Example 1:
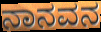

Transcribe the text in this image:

ನಾನವನ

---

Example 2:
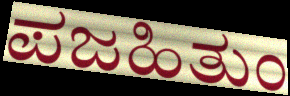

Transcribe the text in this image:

ಪಜಹಿತುಂ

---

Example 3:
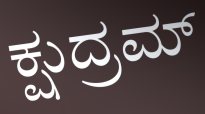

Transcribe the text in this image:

ಕ್ಷುದ್ರಮ್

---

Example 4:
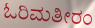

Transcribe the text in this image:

ಓರಿಮತೀರಂ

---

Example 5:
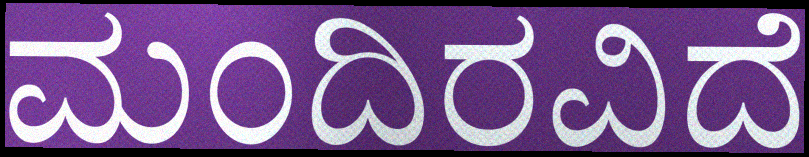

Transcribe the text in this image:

ಮಂದಿರವಿದೆ